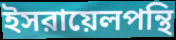
ইসরায়েলপন্থি